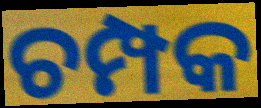
ଚମ୍ପକ